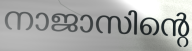
നാജാസിന്റെ